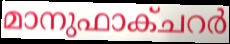
മാനുഫാക്ചറർ